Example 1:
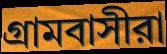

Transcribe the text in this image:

গ্রামবাসীরা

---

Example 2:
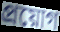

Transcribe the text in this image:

প্রয়োগ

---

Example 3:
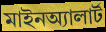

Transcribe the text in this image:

মাইনঅ্যালার্ট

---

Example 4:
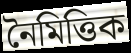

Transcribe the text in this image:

নৈমিত্তিক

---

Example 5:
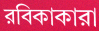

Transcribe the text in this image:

রবিকাকারা